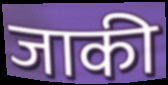
जाकी